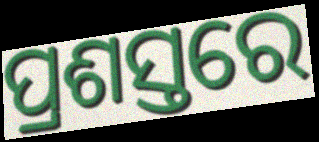
ପ୍ରଶସ୍ତରେ